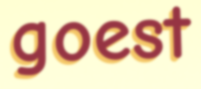
goest